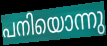
പനിയൊന്നു